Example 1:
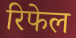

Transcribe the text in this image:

रिफेल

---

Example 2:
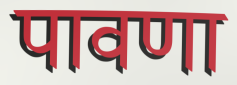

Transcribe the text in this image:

पावणा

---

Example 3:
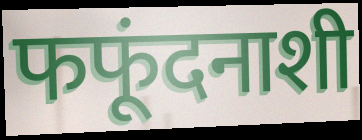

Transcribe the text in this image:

फफूंदनाशी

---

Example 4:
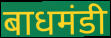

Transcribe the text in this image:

बाधमंडी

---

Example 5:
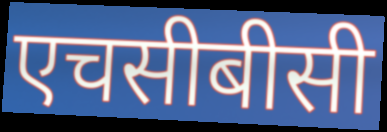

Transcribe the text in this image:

एचसीबीसी